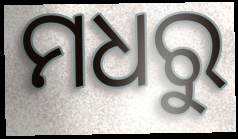
ମଧରୁ